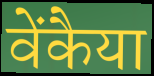
वेंकैया